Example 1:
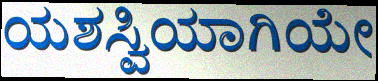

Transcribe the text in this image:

ಯಶಸ್ವಿಯಾಗಿಯೇ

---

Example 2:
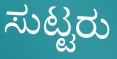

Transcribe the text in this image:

ಸುಟ್ಟರು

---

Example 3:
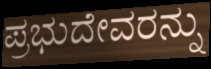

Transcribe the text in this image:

ಪ್ರಭುದೇವರನ್ನು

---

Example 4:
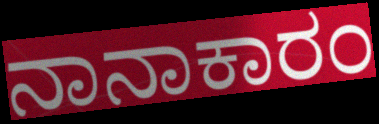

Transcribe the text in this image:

ನಾನಾಕಾರಂ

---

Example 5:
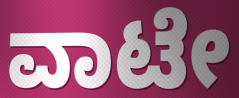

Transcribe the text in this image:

ವಾಟೇ